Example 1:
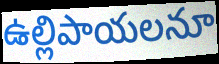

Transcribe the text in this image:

ఉల్లిపాయలనూ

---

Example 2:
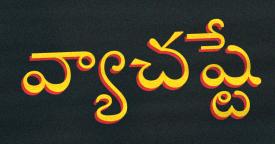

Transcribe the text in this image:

వ్యాచష్టే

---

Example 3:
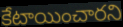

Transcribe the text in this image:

కేటాయించారని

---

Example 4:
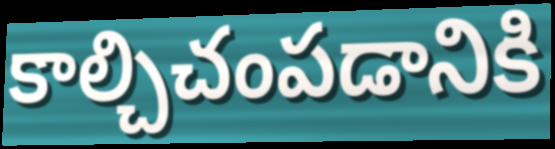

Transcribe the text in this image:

కాల్చిచంపడానికి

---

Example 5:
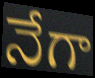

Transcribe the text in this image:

నేగా